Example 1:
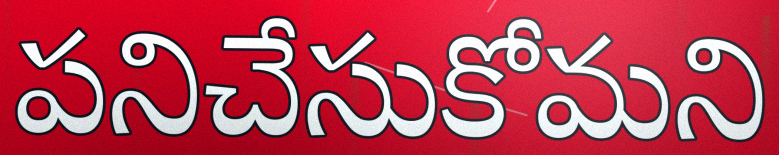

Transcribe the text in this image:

పనిచేసుకోమని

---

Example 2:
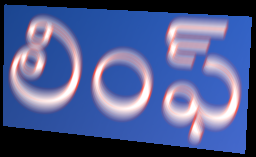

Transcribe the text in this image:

లింఫ్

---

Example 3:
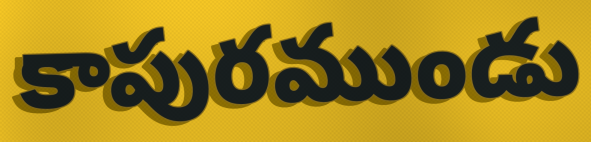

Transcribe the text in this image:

కాపురముండు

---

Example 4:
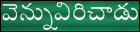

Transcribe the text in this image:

వెన్నువిరిచాడు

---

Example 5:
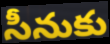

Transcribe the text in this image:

సీనుకు